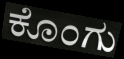
ಕೊಂಗು